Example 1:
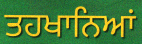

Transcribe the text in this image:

ਤਹਖਾਨਿਆਂ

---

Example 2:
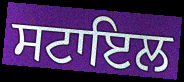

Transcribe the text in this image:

ਸਟਾਇਲ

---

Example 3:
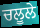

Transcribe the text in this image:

ਚਲੂਲੇ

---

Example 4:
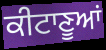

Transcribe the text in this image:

ਕੀਟਾਣੂਆਂ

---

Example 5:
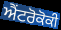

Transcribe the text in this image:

ਐਂਟਰੋਕੋਕੀ